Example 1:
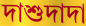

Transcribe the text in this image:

দাশুদাদা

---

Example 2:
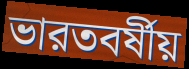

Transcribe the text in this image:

ভারতবর্ষীয়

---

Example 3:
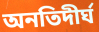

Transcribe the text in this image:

অনতিদীর্ঘ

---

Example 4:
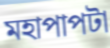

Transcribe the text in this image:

মহাপাপটা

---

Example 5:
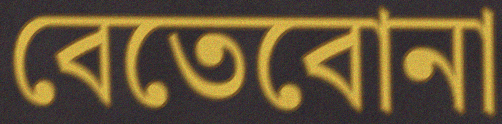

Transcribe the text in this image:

বেতেবোনা